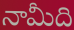
నామీది